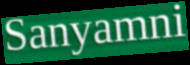
Sanyamni